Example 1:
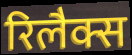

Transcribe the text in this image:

रिलैक्स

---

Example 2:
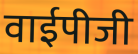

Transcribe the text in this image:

वाईपीजी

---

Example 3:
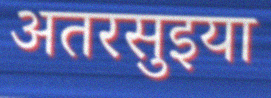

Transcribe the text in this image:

अतरसुइया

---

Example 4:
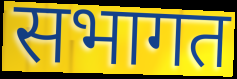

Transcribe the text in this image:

सभागत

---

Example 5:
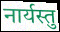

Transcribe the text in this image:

नार्यस्तु